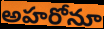
అహరోనూ